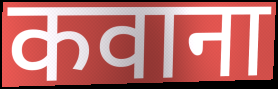
कवाना